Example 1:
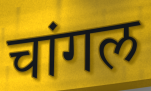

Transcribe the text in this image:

चांगल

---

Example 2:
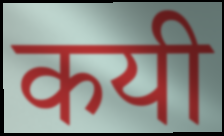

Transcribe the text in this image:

कयी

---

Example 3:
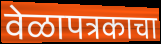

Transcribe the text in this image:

वेळापत्रकाचा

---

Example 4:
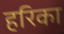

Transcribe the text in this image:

हरिका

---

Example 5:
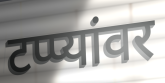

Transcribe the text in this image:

टप्प्यांवर